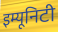
इम्यूनिटी